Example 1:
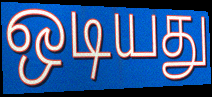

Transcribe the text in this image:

ஒடியது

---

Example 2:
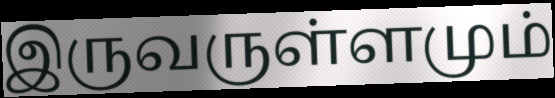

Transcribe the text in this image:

இருவருள்ளமும்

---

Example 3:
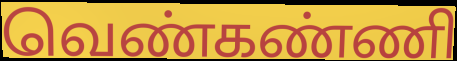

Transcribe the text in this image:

வெண்கண்ணி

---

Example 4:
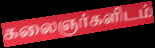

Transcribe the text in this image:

கலைஞர்களிடம்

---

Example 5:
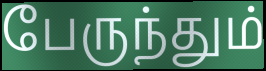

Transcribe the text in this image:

பேருந்தும்